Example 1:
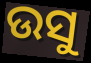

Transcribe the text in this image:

ଉସୁ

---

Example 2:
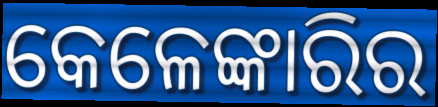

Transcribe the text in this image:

କେଳେଙ୍କାରିର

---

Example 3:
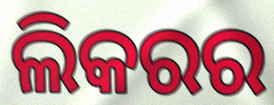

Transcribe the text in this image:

ଲିକରର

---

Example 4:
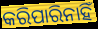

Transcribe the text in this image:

କରିପାରିନାହିଁ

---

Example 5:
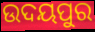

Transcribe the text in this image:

ଉଦୟପୁର